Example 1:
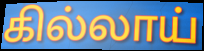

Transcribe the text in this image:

கில்லாய்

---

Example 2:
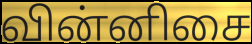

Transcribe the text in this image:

வின்னிசை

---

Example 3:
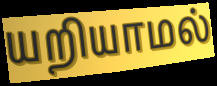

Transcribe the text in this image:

யறியாமல்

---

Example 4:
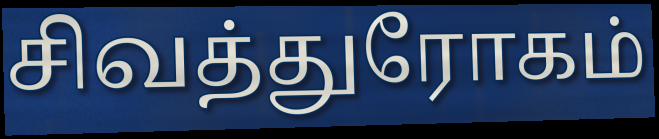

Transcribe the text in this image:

சிவத்துரோகம்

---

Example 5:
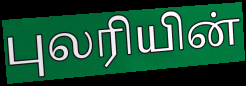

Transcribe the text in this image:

புலரியின்